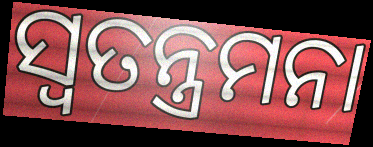
ସ୍ୱତନ୍ତ୍ରମନା